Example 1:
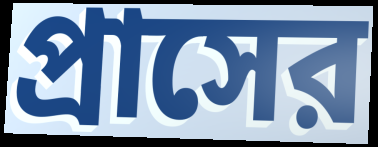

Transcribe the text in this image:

প্রাসের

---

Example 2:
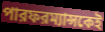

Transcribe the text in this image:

পারফরম্যান্সকেই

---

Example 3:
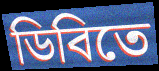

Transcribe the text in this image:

ডিবিতে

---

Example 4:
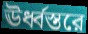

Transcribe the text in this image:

ঊর্ধ্বস্তরে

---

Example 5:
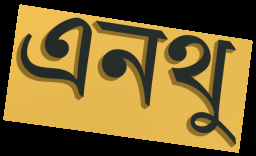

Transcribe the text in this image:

এনথু